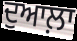
ਦੁਆਲ਼ਾ